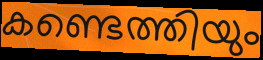
കണ്ടെത്തിയും